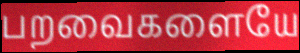
பறவைகளையே